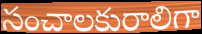
సంచాలకురాలిగా